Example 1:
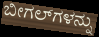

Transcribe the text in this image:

ಬೀಗಲ್‌ಗಳನ್ನು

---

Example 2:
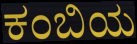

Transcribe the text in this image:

ಕಂಬಿಯ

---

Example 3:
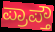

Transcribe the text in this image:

ಪ್ರಾಪ್ತೌ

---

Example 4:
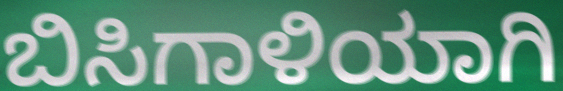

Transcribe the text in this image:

ಬಿಸಿಗಾಳಿಯಾಗಿ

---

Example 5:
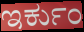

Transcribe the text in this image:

ಇರ್ಕುಂ